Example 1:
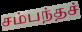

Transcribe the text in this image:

சம்பந்தச்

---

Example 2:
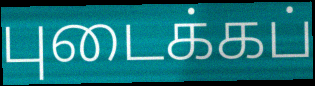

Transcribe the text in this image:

புடைக்கப்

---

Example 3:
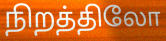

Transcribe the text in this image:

நிறத்திலோ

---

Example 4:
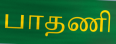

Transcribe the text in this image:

பாதணி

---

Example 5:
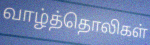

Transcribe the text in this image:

வாழ்த்தொலிகள்